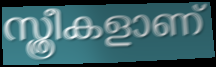
സ്ത്രീകളാണ്